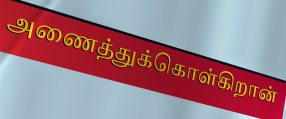
அணைத்துக்கொள்கிறான்